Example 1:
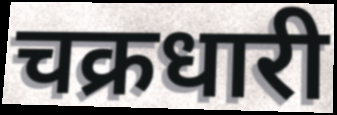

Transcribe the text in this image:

चक्रधारी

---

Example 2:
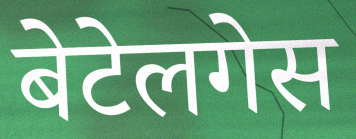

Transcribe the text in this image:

बेटेलगेस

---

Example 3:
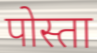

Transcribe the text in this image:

पोस्ता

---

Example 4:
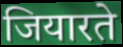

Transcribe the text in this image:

जियारते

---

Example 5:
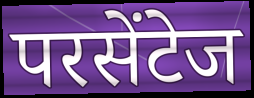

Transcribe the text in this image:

परसेंटेज